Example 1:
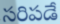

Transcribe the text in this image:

సరిపడే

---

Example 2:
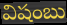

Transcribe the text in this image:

విషంబు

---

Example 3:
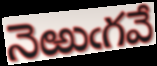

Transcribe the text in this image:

నెఱుఁగవే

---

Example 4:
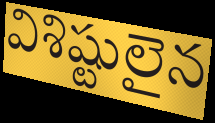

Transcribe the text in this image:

విశిష్టులైన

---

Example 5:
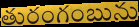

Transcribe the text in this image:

తురంగంబును